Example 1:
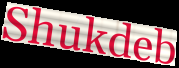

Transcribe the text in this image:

Shukdeb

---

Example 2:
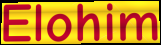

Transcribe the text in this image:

Elohim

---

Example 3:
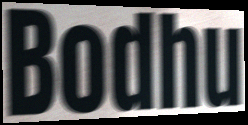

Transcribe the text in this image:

Bodhu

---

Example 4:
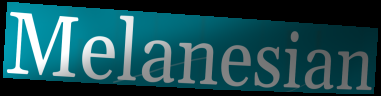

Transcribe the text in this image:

Melanesian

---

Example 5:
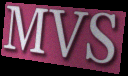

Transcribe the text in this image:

MVS